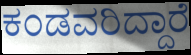
ಕಂಡವರಿದ್ದಾರೆ